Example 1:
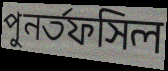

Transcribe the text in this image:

পুনর্তফসিল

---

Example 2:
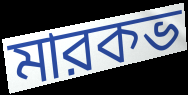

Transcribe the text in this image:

মারকভ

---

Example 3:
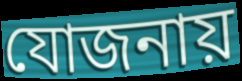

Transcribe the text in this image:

যোজনায়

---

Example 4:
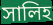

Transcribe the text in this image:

সালিহ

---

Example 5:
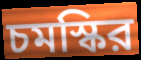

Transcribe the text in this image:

চমস্কির